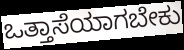
ಒತ್ತಾಸೆಯಾಗಬೇಕು